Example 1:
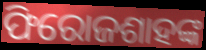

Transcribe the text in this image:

ଫିରୋଜଶାହଙ୍କ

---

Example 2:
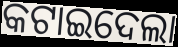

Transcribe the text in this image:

କଟାଇଦେଲା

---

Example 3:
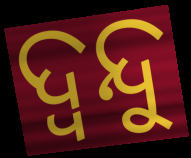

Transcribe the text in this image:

ଦ୍ଵନ୍ଦୁ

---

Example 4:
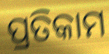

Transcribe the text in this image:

ପ୍ରତିକାମ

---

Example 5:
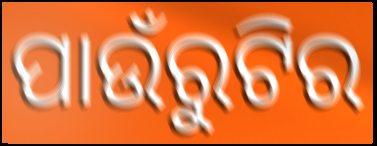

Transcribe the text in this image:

ପାଉଁରୁଟିର